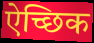
ऐच्छिक